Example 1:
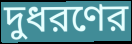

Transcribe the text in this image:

দুধরণের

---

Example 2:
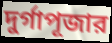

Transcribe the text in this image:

দুর্গাপূজার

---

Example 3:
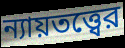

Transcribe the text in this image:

ন্যায়তত্ত্বের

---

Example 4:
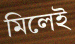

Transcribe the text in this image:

মিলেই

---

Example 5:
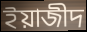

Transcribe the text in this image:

ইয়াজীদ